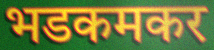
भडकमकर